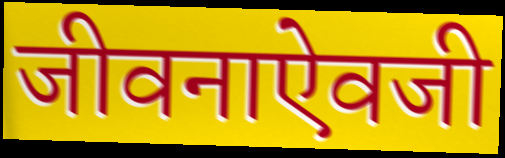
जीवनाऐवजी